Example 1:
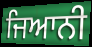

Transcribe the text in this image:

ਜਿਆਨੀ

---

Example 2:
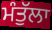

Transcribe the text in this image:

ਮੰਤੁੱਲਾ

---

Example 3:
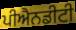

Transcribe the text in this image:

ਪੀਐਨਡੀਟੀ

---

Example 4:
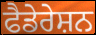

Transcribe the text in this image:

ਫੈਡੇਰੇਸ਼ਨ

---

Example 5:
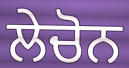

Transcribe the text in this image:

ਲੇਚੋਨ